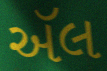
ઍલ